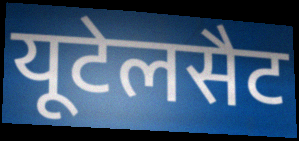
यूटेलसैट